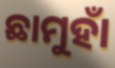
ଛାମୁହାଁ